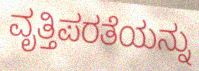
ವೃತ್ತಿಪರತೆಯನ್ನು